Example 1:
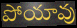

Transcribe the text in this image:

పోయావు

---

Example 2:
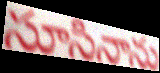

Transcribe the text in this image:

సూసినాను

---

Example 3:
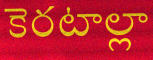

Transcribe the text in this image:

కెరటాల్లా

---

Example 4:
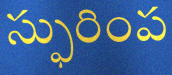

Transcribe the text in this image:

స్ఫురింప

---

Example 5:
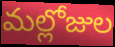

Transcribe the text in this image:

మల్లోజుల